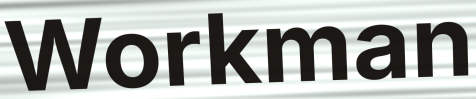
Workman